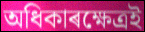
অধিকাৰক্ষেত্ৰই